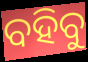
ବହିବୁ